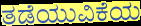
ತಡೆಯುವಿಕೆಯ